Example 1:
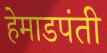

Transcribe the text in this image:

हेमाडपंती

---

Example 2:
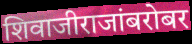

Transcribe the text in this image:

शिवाजीराजांबरोबर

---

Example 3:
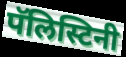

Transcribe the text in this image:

पॅलिस्टिनी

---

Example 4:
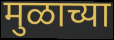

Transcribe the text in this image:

मुळाच्या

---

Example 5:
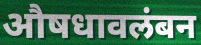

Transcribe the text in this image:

औषधावलंबन